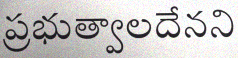
ప్రభుత్వాలదేనని